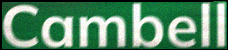
Cambell